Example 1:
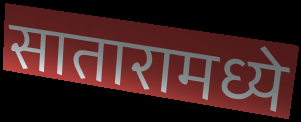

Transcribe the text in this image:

सातारामध्ये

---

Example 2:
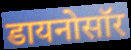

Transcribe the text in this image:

डायनोसॉर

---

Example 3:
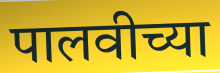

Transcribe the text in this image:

पालवीच्या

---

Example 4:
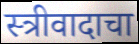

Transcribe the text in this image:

स्त्रीवादाचा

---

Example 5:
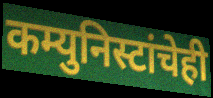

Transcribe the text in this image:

कम्युनिस्टांचेही